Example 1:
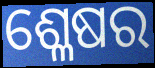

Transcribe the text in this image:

ଶ୍ଳେଷର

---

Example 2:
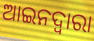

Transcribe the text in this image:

ଆଇନଦ୍ଵାରା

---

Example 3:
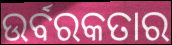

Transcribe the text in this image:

ଉର୍ବରକତାର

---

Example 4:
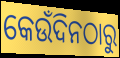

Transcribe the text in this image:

କେଉଁଦିନଠାରୁ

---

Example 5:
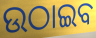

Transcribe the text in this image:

ଉଠାଇବ